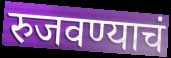
रुजवण्याचं